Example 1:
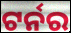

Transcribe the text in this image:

ଟର୍ନର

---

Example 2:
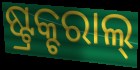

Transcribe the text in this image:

ଷ୍ଟ୍ରକ୍ଚରାଲ୍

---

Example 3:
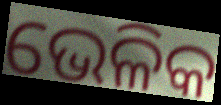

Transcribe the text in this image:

ଭେଳିକ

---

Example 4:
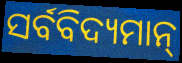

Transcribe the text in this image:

ସର୍ବବିଦ୍ୟମାନ୍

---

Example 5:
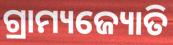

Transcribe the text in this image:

ଗ୍ରାମ୍ୟଜ୍ୟୋତି